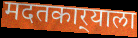
मदतकार्याला